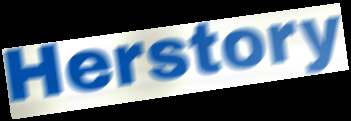
Herstory